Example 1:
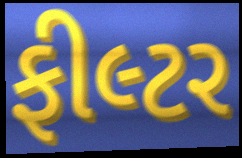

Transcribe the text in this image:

ફીલ્ટર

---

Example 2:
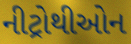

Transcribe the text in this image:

નીટ્રોથીઓન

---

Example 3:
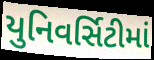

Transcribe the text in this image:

યુનિવર્સિટીમાં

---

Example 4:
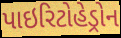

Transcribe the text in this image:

પાઇરિટોહેડ્રોન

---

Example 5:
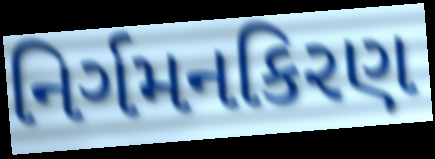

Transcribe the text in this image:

નિર્ગમનકિરણ